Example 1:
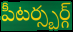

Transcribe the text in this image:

పీటర్స్బర్గ్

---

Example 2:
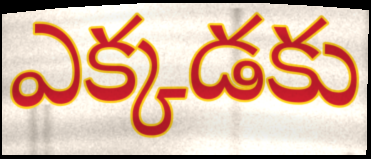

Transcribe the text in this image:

ఎక్కడకు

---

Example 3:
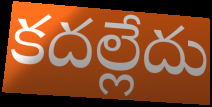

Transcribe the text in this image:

కదల్లేదు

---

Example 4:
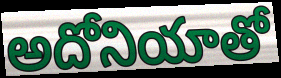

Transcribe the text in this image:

అదోనియాతో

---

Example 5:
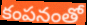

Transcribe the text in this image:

కంపనంతో